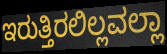
ಇರುತ್ತಿರಲಿಲ್ಲವಲ್ಲಾ